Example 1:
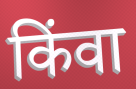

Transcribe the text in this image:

किंवा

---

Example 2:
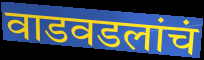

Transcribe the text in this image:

वाडवडलांचं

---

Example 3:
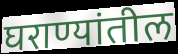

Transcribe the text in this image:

घराण्यांतील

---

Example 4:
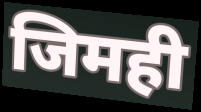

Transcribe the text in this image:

जिमही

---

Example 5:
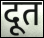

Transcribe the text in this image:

दूत